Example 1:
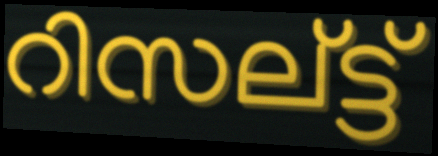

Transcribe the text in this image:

റിസല്ട്ട്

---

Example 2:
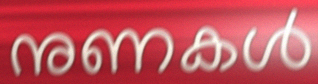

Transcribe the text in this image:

നുണകൾ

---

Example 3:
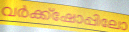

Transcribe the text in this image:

വർക്ക്ഷോപ്പിലോ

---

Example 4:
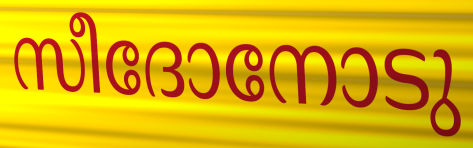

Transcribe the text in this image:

സീദോനോടു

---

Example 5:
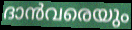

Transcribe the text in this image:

ദാൻവരെയും